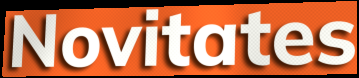
Novitates